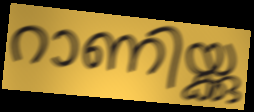
റാണിയ്ക്കു